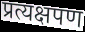
प्रत्यक्षपण